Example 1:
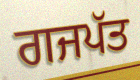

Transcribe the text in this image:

ਗਜਪੱਤ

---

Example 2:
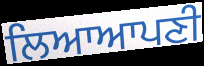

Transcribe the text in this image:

ਲਿਆਆਪਣੀ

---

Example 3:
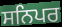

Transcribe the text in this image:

ਸਨਿਪਰ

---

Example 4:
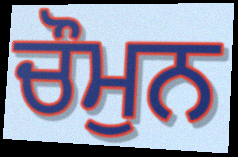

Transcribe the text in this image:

ਚੌਮੁਨ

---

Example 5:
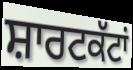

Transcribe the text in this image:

ਸ਼ਾਰਟਕੱਟਾਂ